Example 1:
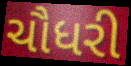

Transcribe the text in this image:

ચૌધરી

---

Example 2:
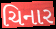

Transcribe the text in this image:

ચિનાર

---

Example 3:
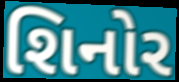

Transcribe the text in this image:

શિનોર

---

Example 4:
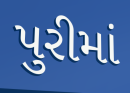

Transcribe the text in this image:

પુરીમાં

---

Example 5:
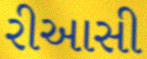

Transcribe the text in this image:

રીઆસી